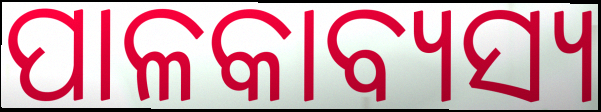
ପାଳକାବ୍ୟସ୍ୟ